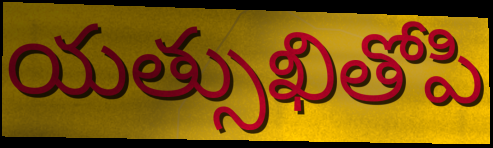
యత్సుఖితోపి